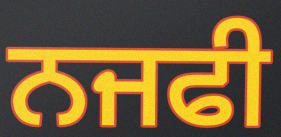
ਨਜਫੀ